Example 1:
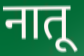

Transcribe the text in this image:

नातू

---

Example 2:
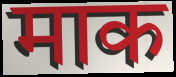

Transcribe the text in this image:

माक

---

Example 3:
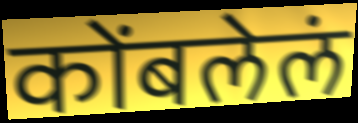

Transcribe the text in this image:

कोंबलेलं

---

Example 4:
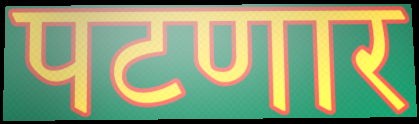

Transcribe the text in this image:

पटणार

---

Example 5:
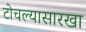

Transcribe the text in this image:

टोचल्यासारखा